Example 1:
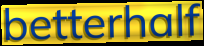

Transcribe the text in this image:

betterhalf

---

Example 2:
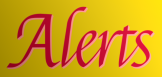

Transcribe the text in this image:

Alerts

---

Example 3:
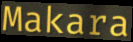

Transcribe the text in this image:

Makara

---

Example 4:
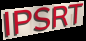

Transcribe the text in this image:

IPSRT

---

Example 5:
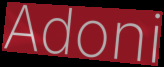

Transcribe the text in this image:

Adoni